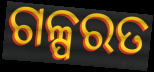
ଗଳ୍ପରତ